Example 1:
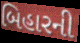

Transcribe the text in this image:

બિહારની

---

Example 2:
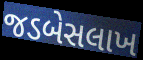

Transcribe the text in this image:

જડબેસલાખ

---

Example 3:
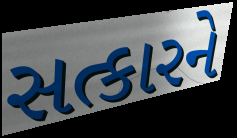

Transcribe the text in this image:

સત્કારને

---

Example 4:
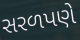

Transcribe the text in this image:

સરળપણે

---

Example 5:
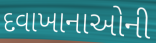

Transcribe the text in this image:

દવાખાનાઓની